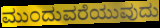
ಮುಂದುವರೆಯುವುದು